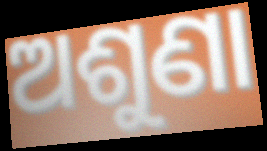
ଅଶୁଣା